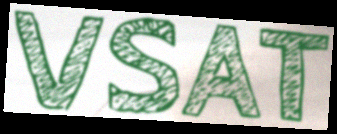
VSAT